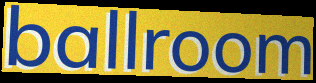
ballroom